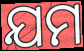
ଯମ